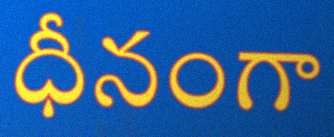
ధీనంగా